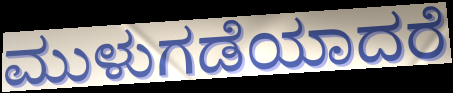
ಮುಳುಗಡೆಯಾದರೆ